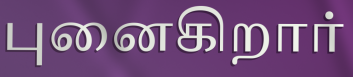
புனைகிறார்